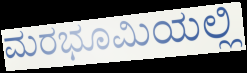
ಮರಭೂಮಿಯಲ್ಲಿ